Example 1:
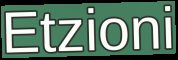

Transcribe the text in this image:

Etzioni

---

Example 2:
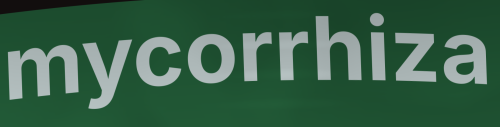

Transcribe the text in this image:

mycorrhiza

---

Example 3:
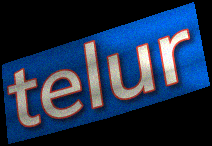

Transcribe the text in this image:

telur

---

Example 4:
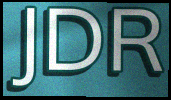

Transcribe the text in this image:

JDR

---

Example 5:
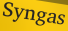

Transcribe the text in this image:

Syngas